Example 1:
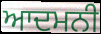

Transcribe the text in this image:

ਆਦਮਨੀ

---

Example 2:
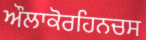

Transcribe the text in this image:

ਔਲਾਕੋਰਹਿਨਚਸ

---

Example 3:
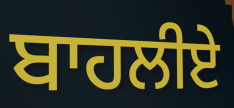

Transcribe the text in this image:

ਬਾਹਲੀਏ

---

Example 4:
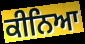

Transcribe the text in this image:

ਕੀਨਿਆ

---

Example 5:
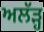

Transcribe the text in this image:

ਅਲੱੜ੍ਹ